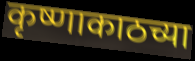
कृष्णाकाठच्या